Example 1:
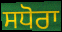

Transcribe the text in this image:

ਸਧੋਰਾ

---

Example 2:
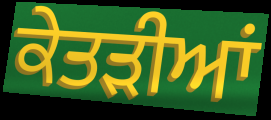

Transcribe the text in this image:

ਕੇਤੜੀਆਂ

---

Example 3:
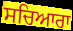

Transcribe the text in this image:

ਸਚਿਆਰਾ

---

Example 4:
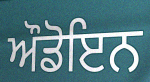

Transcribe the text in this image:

ਔਡੋਇਨ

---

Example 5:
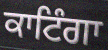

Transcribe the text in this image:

ਕਾਟਿੰਗਾ